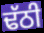
ਢੱਠੀ